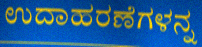
ಉದಾಹರಣೆಗಳನ್ನ